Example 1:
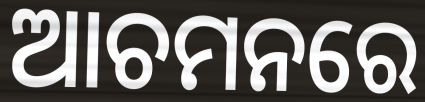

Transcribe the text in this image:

ଆଚମନରେ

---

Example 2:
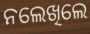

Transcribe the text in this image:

ନଲେଖିଲେ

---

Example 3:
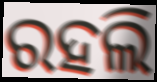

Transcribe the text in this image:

ରହଲି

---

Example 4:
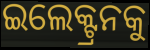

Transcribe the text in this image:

ଇଲେକ୍ଟ୍ରନକୁ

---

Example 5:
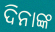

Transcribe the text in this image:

ଦିନାଙ୍କ